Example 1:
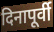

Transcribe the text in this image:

दिनापूर्वी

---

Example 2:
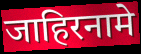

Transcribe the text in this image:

जाहिरनामे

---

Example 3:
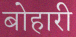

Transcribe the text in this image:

बोहारी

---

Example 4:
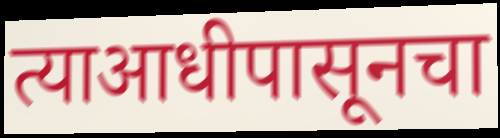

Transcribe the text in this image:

त्याआधीपासूनचा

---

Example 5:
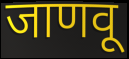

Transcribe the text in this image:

जाणवू